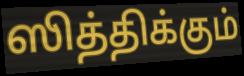
ஸித்திக்கும்